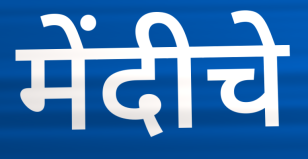
मेंदीचे